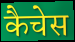
कैचेस